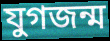
যুগজন্ম